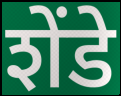
शेंडे